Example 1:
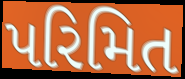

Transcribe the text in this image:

પરિમિત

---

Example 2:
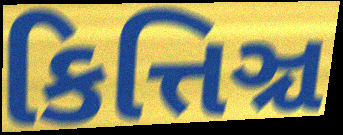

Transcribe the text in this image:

કિત્તિઞ્ચ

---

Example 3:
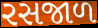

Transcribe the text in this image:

રસજાળ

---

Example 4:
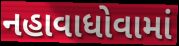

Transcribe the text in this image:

નહાવાધોવામાં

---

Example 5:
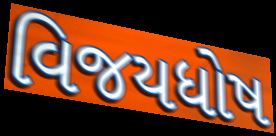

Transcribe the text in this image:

વિજયધોષ